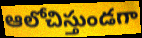
ఆలోచిస్తుండగా